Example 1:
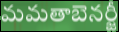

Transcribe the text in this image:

మమతాబెనర్జీ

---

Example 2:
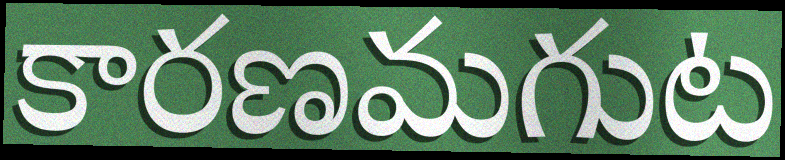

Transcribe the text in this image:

కారణమగుట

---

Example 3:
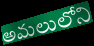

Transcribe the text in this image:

అమలులోని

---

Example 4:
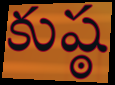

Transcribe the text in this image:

కుష్ఠ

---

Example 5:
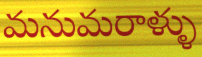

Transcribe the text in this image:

మనుమరాళ్ళు